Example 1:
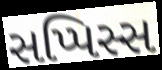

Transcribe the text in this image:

સપ્પિસ્સ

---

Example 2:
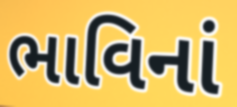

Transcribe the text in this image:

ભાવિનાં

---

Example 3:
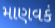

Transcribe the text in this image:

માણવકં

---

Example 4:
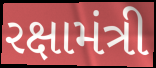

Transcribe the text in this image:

રક્ષામંત્રી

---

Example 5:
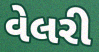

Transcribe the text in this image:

વેલરી